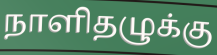
நாளிதழுக்கு